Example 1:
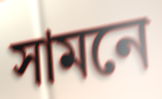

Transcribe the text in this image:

সামনে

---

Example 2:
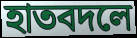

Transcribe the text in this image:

হাতবদলে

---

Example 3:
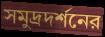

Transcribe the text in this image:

সমুদ্রদর্শনের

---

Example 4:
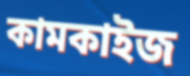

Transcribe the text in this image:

কামকাইজ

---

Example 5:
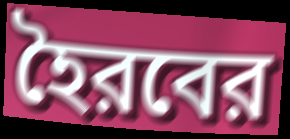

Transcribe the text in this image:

হৈরবের